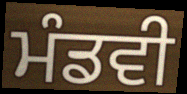
ਮੰਡਵੀ